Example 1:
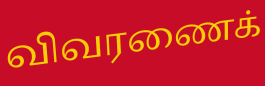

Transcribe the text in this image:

விவரணைக்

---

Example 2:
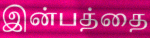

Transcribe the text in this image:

இன்பத்தை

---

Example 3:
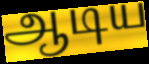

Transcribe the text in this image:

ஆடிய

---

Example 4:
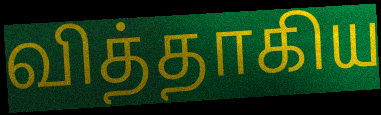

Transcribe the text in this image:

வித்தாகிய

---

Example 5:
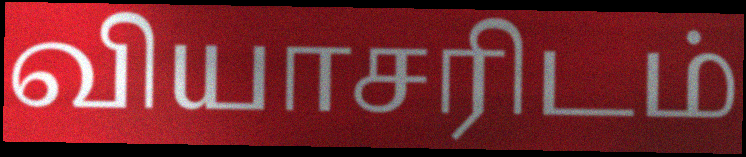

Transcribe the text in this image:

வியாசரிடம்